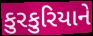
કુરકુરિયાને